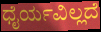
ಧೈರ್ಯವಿಲ್ಲದೆ